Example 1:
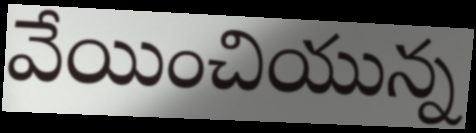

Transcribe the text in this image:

వేయించియున్న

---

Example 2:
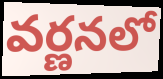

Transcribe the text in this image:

వర్ణనలో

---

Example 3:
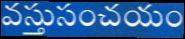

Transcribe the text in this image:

వస్తుసంచయం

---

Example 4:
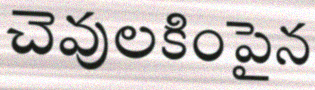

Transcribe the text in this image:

చెవులకింపైన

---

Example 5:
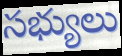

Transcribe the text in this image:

సభ్యులు